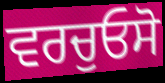
ਵਰਚੁਓਸੋ